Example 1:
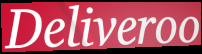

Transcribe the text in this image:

Deliveroo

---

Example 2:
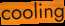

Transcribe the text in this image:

cooling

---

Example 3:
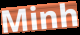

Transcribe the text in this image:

Minh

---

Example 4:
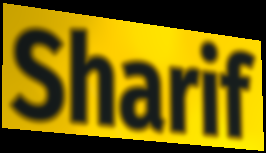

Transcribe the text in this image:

Sharif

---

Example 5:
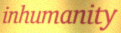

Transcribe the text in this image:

inhumanity